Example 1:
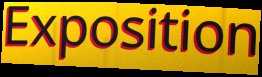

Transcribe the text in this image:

Exposition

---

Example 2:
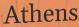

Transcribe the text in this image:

Athens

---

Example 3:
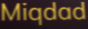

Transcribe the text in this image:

Miqdad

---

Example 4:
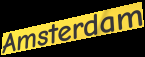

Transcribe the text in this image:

Amsterdam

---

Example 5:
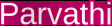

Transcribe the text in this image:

Parvathi